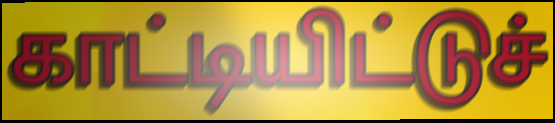
காட்டியிட்டுச்